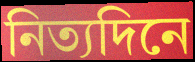
নিত্যদিনে